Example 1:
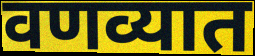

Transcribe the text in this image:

वणव्यात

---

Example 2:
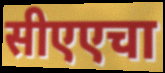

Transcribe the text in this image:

सीएएचा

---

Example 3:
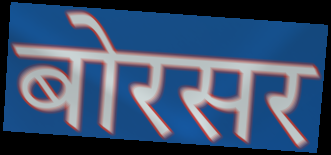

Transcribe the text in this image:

बोरसर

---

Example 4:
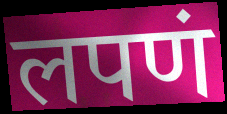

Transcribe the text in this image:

लपणं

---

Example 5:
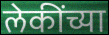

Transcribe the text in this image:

लेकींच्या